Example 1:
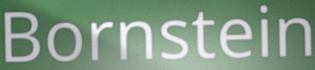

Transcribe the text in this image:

Bornstein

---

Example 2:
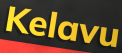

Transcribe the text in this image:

Kelavu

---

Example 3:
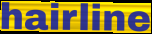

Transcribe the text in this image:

hairline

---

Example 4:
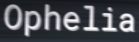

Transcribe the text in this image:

Ophelia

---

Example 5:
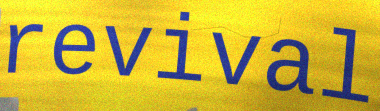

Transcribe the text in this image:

revival